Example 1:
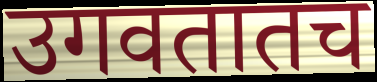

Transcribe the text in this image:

उगवतातच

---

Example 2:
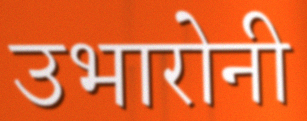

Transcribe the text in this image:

उभारोनी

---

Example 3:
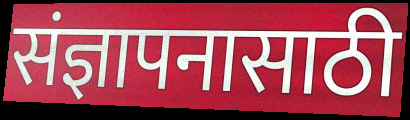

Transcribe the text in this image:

संज्ञापनासाठी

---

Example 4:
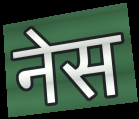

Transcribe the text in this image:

नेस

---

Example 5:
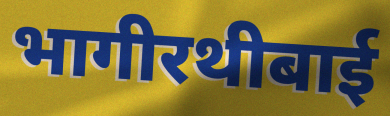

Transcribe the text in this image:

भागीरथीबाई